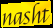
nasht